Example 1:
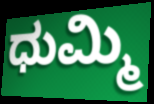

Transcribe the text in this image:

ಧುಮ್ಮಿ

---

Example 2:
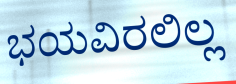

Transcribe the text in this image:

ಭಯವಿರಲಿಲ್ಲ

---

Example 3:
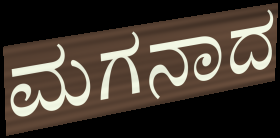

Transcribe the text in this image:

ಮಗನಾದ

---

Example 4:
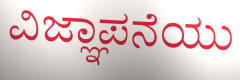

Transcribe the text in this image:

ವಿಜ್ಞಾಪನೆಯು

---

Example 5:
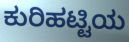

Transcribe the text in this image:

ಕುರಿಹಟ್ಟಿಯ